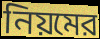
নিয়মের